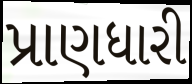
પ્રાણધારી